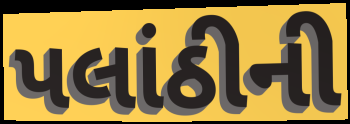
પલાંઠીની